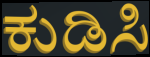
ಕುಡಿಸಿ